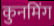
कुनमिंग